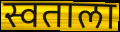
स्वताला